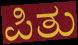
ಪಿತು